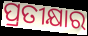
ପ୍ରତୀକ୍ଷାର